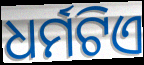
ଧର୍ମଟିଏ